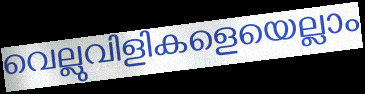
വെല്ലുവിളികളെയെല്ലാം